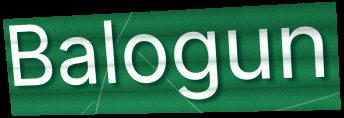
Balogun